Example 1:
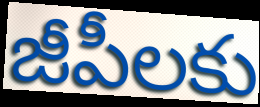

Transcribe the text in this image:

జీపీలకు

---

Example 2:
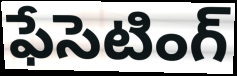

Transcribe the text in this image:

ఫేసెటింగ్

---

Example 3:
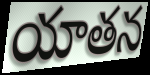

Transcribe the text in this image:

యాతన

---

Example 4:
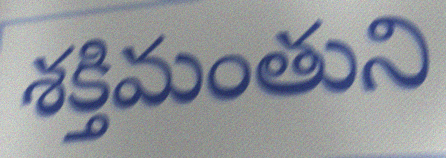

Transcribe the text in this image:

శక్తిమంతుని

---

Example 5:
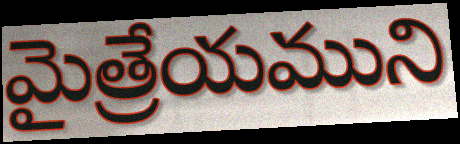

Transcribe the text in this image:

మైత్రేయముని